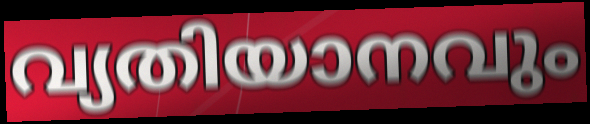
വ്യതിയാനവും